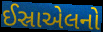
ઈસ્રાએલનો